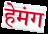
हेमंग